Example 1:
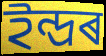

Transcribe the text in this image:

ইন্দ্ৰৰ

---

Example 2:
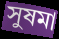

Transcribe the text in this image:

সুষমা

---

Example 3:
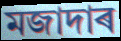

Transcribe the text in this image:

মজাদাৰ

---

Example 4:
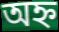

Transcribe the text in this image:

অহ্ন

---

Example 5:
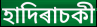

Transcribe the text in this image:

হাদিৰাচকী